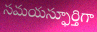
సమయస్ఫూర్తిగా